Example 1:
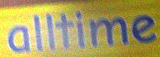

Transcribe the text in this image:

alltime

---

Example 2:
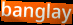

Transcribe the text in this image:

banglay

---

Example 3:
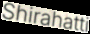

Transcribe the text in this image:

Shirahatti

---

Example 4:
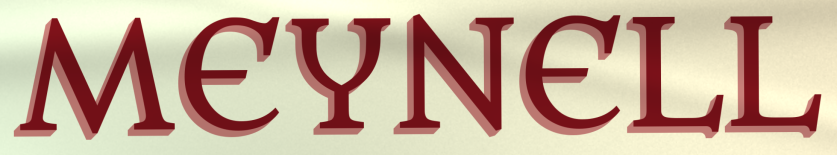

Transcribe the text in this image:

MEYNELL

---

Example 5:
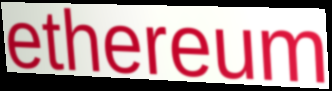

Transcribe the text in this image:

ethereum